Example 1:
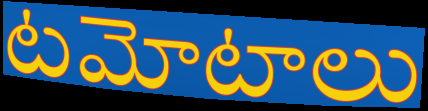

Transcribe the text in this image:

టమోటాలు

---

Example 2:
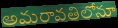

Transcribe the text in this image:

అమరావతిలోనూ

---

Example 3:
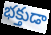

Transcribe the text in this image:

భక్తుడా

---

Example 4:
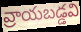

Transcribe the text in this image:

వ్రాయబడ్డవి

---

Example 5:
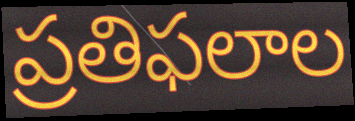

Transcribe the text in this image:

ప్రతిఫలాల